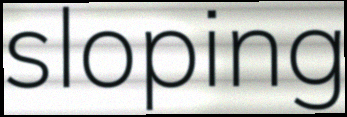
sloping